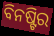
ବିନଷ୍ଟିର